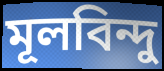
মূলবিন্দু